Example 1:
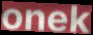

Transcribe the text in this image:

onek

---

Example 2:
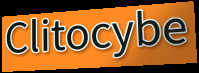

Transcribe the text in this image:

Clitocybe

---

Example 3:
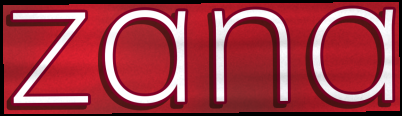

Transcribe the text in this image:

zana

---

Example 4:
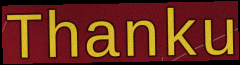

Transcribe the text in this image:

Thanku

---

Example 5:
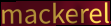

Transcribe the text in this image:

mackerel